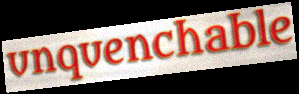
unquenchable